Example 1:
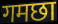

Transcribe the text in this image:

गमछा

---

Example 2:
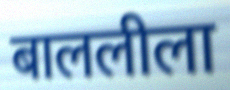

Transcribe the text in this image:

बाललीला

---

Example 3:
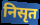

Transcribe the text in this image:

निसृत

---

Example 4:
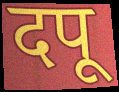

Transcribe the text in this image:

दपू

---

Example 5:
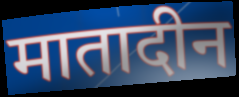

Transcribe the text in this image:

मातादीन